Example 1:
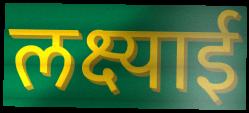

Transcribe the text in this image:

लक्ष्याई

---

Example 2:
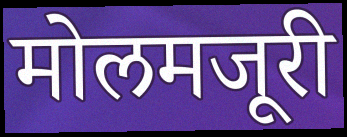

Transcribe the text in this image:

मोलमजूरी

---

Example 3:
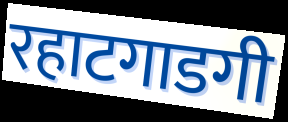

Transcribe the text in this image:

रहाटगाडगी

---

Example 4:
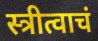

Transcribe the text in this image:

स्त्रीत्वाचं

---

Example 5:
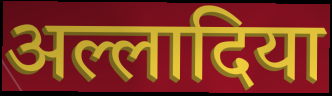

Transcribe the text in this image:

अल्लादिया